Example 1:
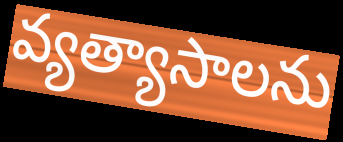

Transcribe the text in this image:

వ్యత్యాసాలను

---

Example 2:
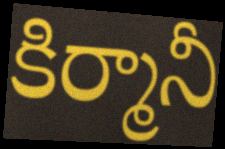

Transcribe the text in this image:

కిర్మానీ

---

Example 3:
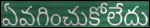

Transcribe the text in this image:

ఏవగించుకోలేదు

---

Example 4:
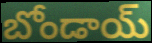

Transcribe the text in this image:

బోండాయ్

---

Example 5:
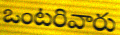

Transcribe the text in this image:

ఒంటరివారు